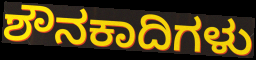
ಶೌನಕಾದಿಗಳು